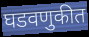
घडवणुकीत